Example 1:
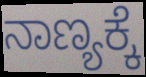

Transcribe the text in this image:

ನಾಣ್ಯಕ್ಕೆ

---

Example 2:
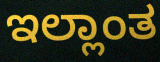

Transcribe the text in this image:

ಇಲ್ಲಾಂತ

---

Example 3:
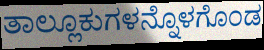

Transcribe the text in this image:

ತಾಲ್ಲೂಕುಗಳನ್ನೊಳಗೊಂಡ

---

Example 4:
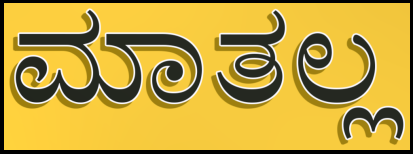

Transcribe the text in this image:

ಮಾತಲ್ಲ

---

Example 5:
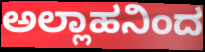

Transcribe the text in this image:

ಅಲ್ಲಾಹನಿಂದ